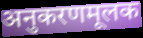
अनुकरणमूलक